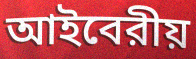
আইবেরীয়